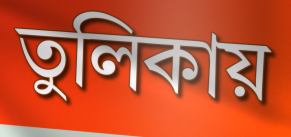
তুলিকায়